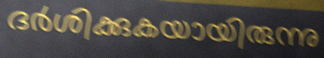
ദർശിക്കുകയായിരുന്നു